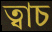
ত্বাচ